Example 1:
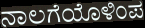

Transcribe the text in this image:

ನಾಲಗೆಯೊಳಿಂಪ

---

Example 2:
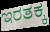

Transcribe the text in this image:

ಇರತಕ್ಕ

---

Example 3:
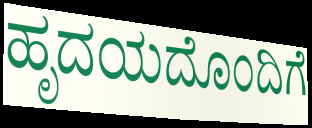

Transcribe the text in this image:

ಹೃದಯದೊಂದಿಗೆ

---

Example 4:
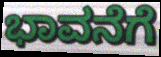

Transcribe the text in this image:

ಭಾವನೆಗೆ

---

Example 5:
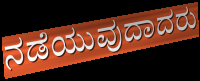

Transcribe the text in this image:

ನಡೆಯುವುದಾದರು